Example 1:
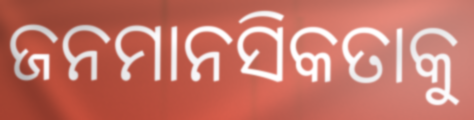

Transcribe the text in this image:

ଜନମାନସିକତାକୁ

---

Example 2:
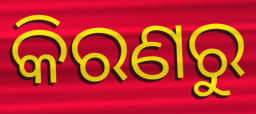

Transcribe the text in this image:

କିରଣରୁ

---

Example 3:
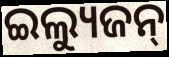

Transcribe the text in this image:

ଇଲ୍ୟୁଜନ୍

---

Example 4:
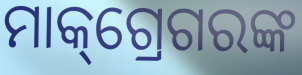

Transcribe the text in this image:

ମାକ୍‌ଗ୍ରେଗରଙ୍କ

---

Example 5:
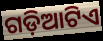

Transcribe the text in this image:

ଗଡ଼ିଆଟିଏ